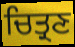
ਚਿਤ੍ਰਣ